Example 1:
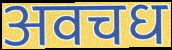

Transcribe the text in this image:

अवचध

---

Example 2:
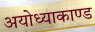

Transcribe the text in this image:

अयोध्याकाण्ड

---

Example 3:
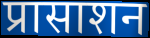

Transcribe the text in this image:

प्रासाशन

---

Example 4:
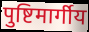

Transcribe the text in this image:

पुष्टिमार्गीय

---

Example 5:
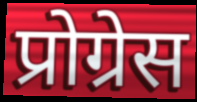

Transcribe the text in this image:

प्रोग्रेस